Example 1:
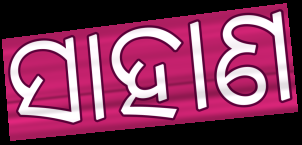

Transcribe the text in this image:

ସାହାଣ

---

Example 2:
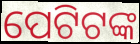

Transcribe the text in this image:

ପେଟିଟଙ୍କ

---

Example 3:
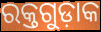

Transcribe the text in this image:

ରକ୍ତଗୁଡ଼ାକ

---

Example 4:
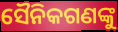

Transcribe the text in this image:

ସୈନିକଗଣଙ୍କୁ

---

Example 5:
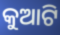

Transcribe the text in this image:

କୁଆଟି